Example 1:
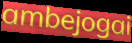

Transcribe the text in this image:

ambejogai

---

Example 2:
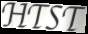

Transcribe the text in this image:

HTST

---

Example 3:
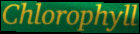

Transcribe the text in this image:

Chlorophyll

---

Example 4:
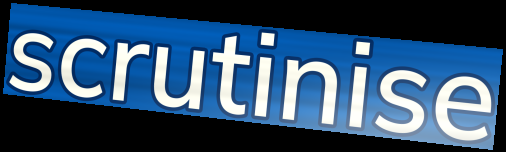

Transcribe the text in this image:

scrutinise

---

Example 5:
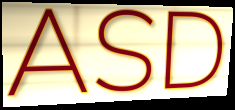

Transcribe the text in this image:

ASD